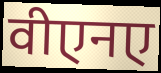
वीएनए